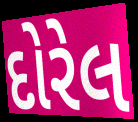
દોરેલ